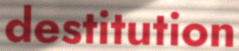
destitution